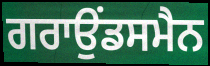
ਗਰਾਉਂਡਸਮੈਨ